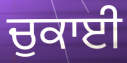
ਚੁਕਾਈ